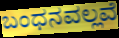
ಬಂಧನವಲ್ಲವೆ